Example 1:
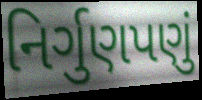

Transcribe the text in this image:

નિર્ગુણપણું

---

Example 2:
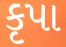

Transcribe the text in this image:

કૃપા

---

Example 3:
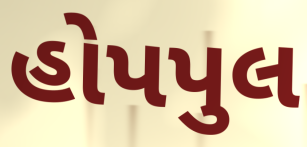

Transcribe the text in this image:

હોપપુલ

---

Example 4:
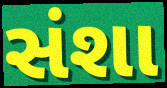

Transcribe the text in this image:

સંશા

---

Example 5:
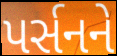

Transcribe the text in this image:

પર્સનને